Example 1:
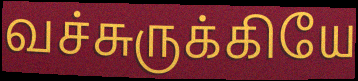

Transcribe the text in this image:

வச்சுருக்கியே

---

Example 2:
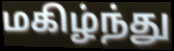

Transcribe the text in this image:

மகிழ்ந்து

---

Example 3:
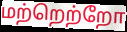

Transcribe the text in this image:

மற்றெற்றோ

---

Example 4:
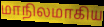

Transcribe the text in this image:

மாநிலமாகிய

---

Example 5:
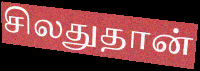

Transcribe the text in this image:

சிலதுதான்